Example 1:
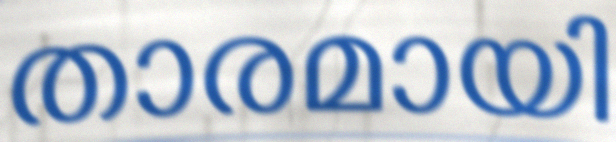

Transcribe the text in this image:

താരമായി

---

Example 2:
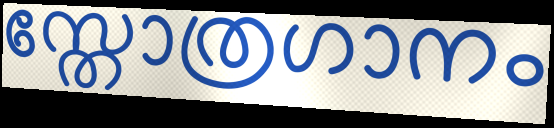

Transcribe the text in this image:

സ്തോത്രഗാനം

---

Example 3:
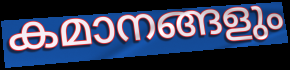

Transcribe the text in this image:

കമാനങ്ങളും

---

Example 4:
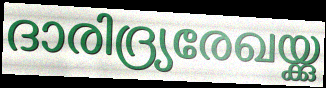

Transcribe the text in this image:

ദാരിദ്ര്യരേഖയ്ക്കു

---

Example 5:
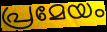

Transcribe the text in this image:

പ്രമേയം